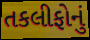
તકલીફોનું